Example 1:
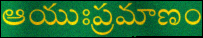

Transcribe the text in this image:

ఆయుఃప్రమాణం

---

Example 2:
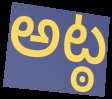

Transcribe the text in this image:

అట్ఠ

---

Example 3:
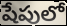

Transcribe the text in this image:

షేపులో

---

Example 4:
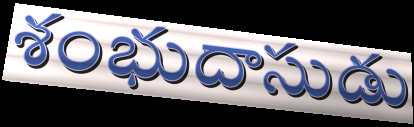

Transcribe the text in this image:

శంభుదాసుడు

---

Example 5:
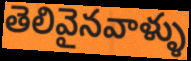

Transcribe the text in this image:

తెలివైనవాళ్ళు